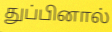
துப்பினால்